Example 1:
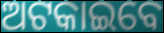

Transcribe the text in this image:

ଅଟକାଇବେ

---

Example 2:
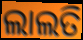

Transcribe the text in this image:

ଲାଲତି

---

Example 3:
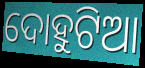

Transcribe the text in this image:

ଦୋହୁଟିଆ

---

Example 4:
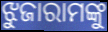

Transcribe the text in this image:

ଝୁଜାରାମଙ୍କୁ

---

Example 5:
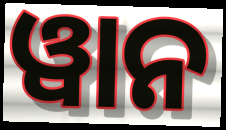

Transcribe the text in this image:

ୱାନ